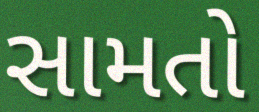
સામતો